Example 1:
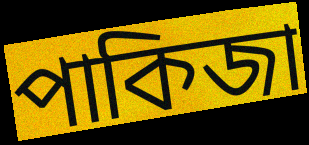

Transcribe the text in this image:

পাকিজা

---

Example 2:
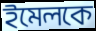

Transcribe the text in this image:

ইমেলকে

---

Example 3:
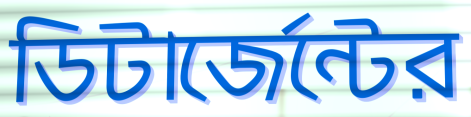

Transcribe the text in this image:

ডিটার্জেন্টের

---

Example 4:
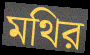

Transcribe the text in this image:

মথির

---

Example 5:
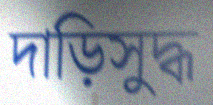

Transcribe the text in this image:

দাড়িসুদ্ধ